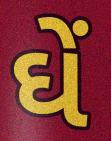
ઘેં